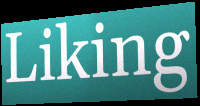
Liking